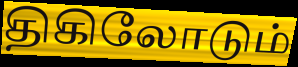
திகிலோடும்